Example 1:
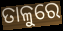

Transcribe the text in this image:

ତାଳୁରେ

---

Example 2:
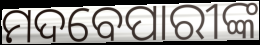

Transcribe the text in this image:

ମଦବେପାରୀଙ୍କ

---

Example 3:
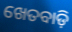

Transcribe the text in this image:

ଖେତବାଡ଼ି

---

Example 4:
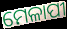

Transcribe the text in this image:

ମେଳାପୀ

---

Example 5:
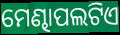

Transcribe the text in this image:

ମେଣ୍ଢାପଲଟିଏ